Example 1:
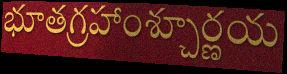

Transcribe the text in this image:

భూతగ్రహాంశ్చూర్ణయ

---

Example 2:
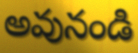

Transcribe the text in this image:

అవునండి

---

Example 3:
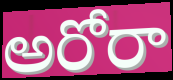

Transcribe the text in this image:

అరోరా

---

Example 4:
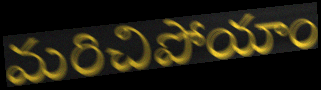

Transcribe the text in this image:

మరిచిపోయాం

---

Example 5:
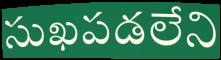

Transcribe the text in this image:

సుఖపడలేని